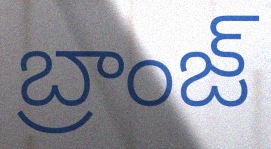
బ్రాంజ్